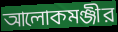
আলোকমঞ্জীর